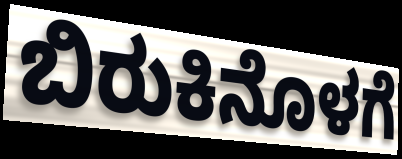
ಬಿರುಕಿನೊಳಗೆ